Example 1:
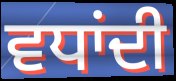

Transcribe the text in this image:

ਵਧਾਂਦੀ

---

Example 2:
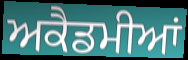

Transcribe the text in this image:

ਅਕੈਡਮੀਆਂ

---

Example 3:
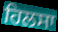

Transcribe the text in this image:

ਹਿਲਸਾ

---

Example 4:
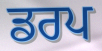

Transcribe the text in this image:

ਡਰਪ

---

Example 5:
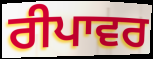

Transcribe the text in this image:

ਰੀਪਾਵਰ